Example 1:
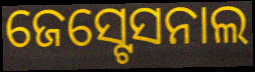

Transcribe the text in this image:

ଜେସ୍ଟେସନାଲ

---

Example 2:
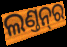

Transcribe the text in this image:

ଲଣ୍ତନ୍‌ର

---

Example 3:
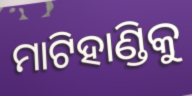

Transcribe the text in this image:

ମାଟିହାଣ୍ଡିକୁ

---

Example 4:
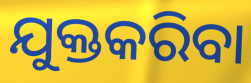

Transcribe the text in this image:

ଯୁକ୍ତକରିବା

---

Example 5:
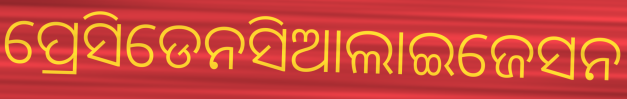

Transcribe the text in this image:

ପ୍ରେସିଡେନସିଆଲାଇଜେସନ